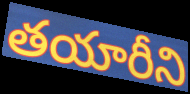
తయారీని